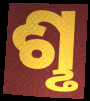
ଶୢ